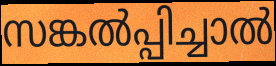
സങ്കൽപ്പിച്ചാൽ